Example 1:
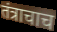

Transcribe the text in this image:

तंत्राचाच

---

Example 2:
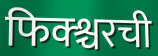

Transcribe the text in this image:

फिक्श्चरची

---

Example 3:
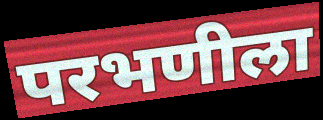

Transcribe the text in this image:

परभणीला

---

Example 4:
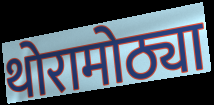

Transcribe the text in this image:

थोरामोठ्या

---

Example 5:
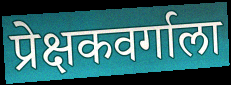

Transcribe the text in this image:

प्रेक्षकवर्गाला